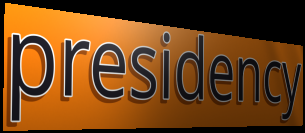
presidency